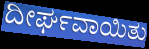
ದೀರ್ಘವಾಯಿತು